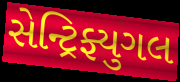
સેન્ટ્રિફ્યુગલ